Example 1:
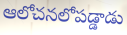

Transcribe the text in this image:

ఆలోచనలోపడ్డాడు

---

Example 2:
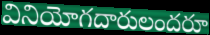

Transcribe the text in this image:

వినియోగదారులందరూ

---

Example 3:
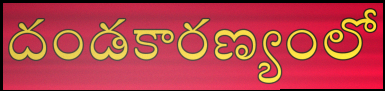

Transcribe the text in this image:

దండకారణ్యంలో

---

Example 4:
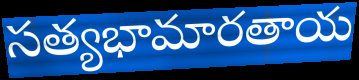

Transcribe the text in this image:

సత్యభామారతాయ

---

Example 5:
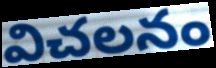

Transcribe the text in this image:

విచలనం